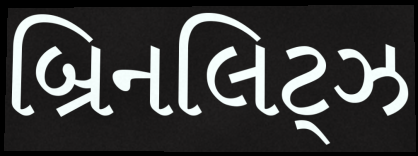
બ્રિનલિટ્ઝ